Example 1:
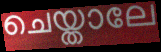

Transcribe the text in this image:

ചെയ്താലേ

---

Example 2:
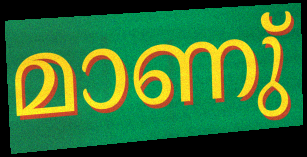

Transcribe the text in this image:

മാണു്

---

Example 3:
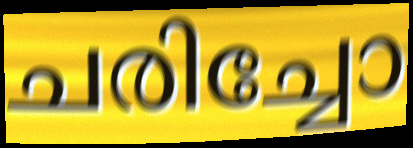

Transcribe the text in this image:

ചരിച്ചോ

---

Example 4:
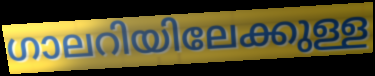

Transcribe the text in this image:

ഗാലറിയിലേക്കുള്ള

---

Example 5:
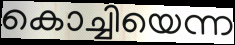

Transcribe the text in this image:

കൊച്ചിയെന്ന